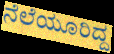
ನೆಲೆಯೂರಿದ್ದ